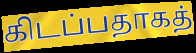
கிடப்பதாகத்